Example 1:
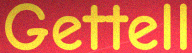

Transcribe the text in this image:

Gettell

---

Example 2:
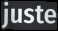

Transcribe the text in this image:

juste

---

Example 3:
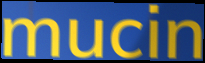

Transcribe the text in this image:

mucin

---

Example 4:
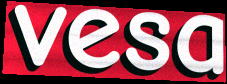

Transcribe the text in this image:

vesa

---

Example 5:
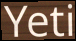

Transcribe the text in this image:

Yeti